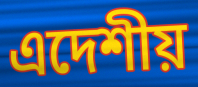
এদেশীয়